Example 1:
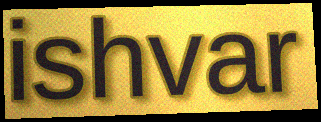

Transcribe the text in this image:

ishvar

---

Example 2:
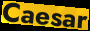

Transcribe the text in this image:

Caesar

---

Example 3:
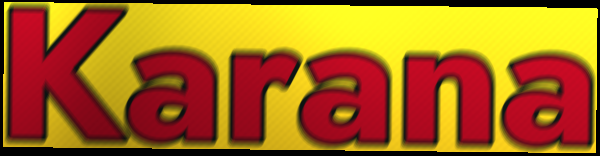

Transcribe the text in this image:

Karana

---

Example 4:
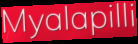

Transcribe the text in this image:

Myalapilli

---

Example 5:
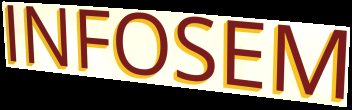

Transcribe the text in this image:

INFOSEM